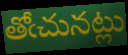
తోఁచునట్లు